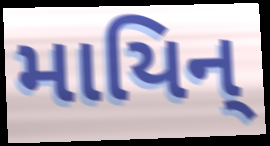
માયિન્